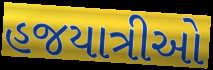
હજયાત્રીઓ